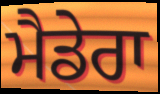
ਮੈਡੇਰਾ